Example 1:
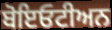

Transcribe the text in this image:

ਬੋਇਓਟੀਅਨ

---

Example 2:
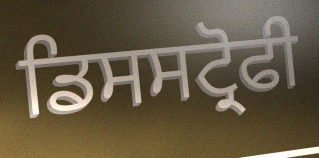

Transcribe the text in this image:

ਡਿਸਸਟ੍ਰੋਫੀ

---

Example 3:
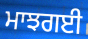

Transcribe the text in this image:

ਮਾਝਗਈ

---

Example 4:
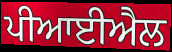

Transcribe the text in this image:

ਪੀਆਈਐਲ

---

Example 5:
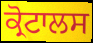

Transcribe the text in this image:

ਕ੍ਰੋਟਾਲਸ